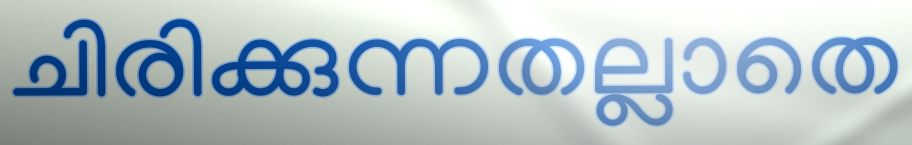
ചിരിക്കുന്നതല്ലാതെ